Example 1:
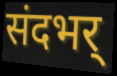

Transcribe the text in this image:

संदभर्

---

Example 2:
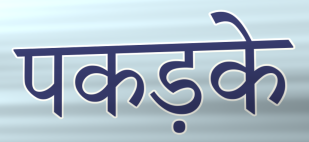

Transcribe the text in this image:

पकड़के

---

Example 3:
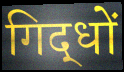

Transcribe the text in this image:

गिद्धों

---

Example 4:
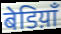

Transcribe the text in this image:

बेडिय़ाँ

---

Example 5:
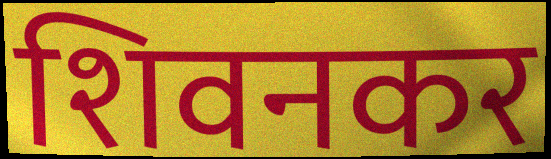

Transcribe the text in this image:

शिवनकर